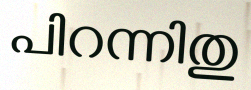
പിറന്നിതു